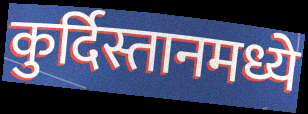
कुर्दिस्तानमध्ये